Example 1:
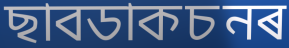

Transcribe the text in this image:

ছাবডাকচনৰ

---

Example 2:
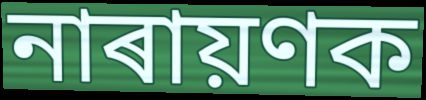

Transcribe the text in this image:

নাৰায়ণক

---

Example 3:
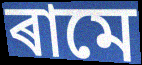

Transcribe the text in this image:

ৰামে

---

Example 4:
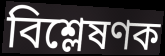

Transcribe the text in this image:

বিশ্লেষণক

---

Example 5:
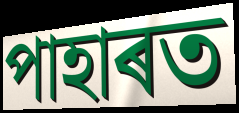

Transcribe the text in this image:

পাহাৰত